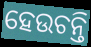
ହେଉଚନ୍ତି